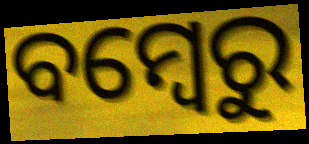
ବମ୍ବେରୁ